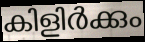
കിളിർക്കും